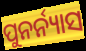
ପୁନର୍ନ୍ୟାସ